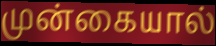
முன்கையால்